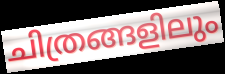
ചിത്രങ്ങളിലും